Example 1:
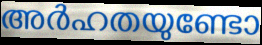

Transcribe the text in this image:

അർഹതയുണ്ടോ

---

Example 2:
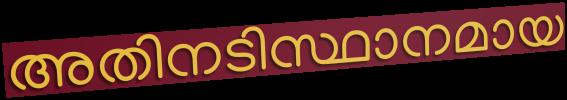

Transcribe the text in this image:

അതിനടിസ്ഥാനമായ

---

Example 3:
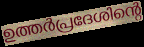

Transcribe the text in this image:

ഉത്തർപ്രദേശിന്റെ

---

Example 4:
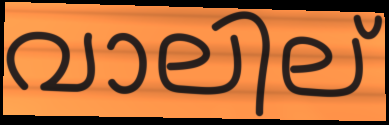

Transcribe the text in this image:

വാലില്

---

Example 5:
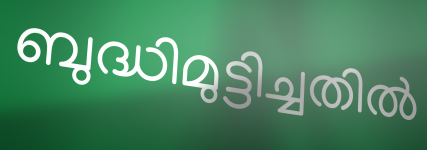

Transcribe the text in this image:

ബുദ്ധിമുട്ടിച്ചതിൽ